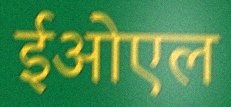
ईओएल